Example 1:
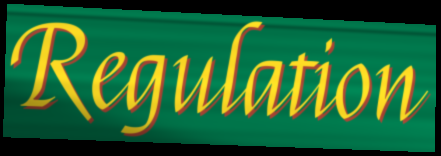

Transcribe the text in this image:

Regulation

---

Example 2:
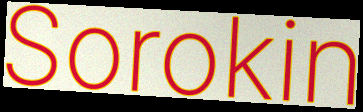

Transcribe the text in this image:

Sorokin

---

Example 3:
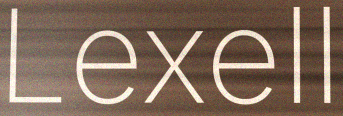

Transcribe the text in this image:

Lexell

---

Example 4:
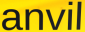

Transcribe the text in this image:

anvil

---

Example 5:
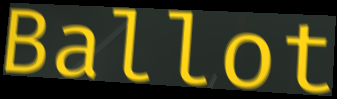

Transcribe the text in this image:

Ballot